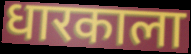
धारकाला